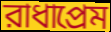
রাধাপ্রেম